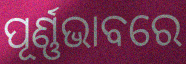
ପୂର୍ଣ୍ଣଭାବରେ